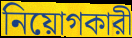
নিয়োগকারী